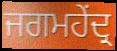
ਜਗਮਹੇਂਦ੍ਰ